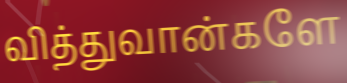
வித்துவான்களே